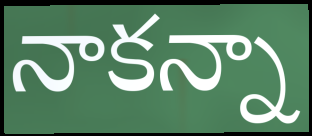
నాకన్నా